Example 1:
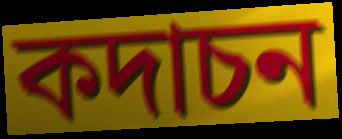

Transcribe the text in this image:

কদাচন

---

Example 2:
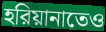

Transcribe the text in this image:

হরিয়ানাতেও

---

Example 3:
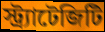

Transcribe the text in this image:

স্ট্র্যাটেজিটি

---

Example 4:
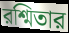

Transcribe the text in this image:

রশ্মিতার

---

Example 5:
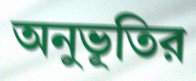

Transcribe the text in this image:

অনুভূতির